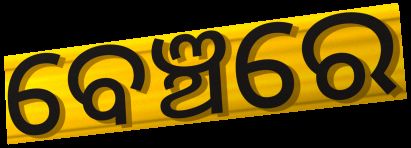
ବେଞ୍ଚରେ